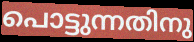
പൊട്ടുന്നതിനു